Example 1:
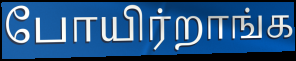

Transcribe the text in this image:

போயிர்றாங்க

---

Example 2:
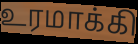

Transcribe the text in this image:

உரமாக்கி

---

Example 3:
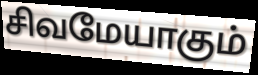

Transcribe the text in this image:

சிவமேயாகும்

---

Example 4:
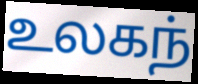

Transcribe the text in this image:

உலகந்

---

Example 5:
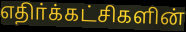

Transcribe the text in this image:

எதிர்க்கட்சிகளின்